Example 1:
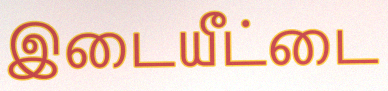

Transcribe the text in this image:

இடையீட்டை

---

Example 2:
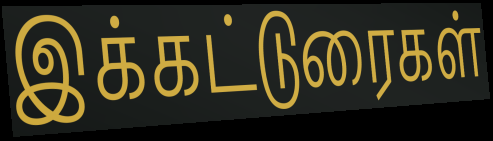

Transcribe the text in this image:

இக்கட்டுரைகள்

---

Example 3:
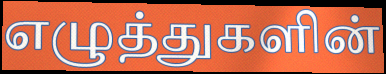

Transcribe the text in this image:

எழுத்துகளின்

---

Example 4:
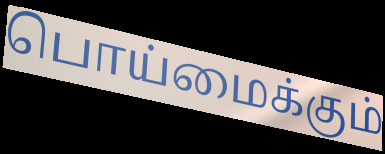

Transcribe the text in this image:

பொய்மைக்கும்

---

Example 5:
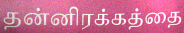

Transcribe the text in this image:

தன்னிரக்கத்தை